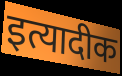
इत्यादीक